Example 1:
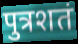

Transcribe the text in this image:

पुत्रशतं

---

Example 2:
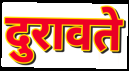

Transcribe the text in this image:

दुरावते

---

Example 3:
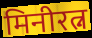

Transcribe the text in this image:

मिनीरत्न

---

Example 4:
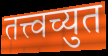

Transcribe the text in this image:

तत्त्वच्युत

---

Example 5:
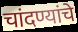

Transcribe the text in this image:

चांदण्यांचे